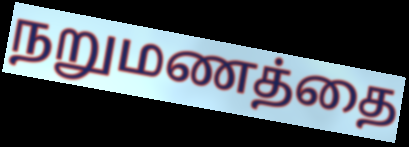
நறுமணத்தை